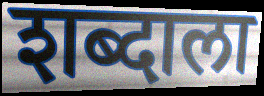
शब्दाला